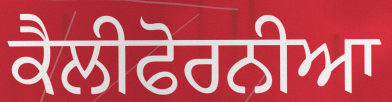
ਕੈਲੀਫੋਰਨੀਆ